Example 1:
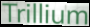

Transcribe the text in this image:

Trillium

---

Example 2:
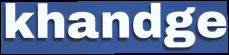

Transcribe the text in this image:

khandge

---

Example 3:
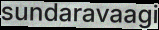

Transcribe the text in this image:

sundaravaagi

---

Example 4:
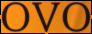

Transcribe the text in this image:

OVO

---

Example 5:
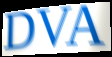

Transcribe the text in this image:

DVA